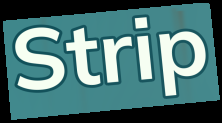
Strip